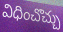
విధించొచ్చు